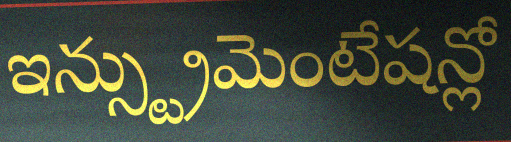
ఇన్స్ట్రుమెంటేషన్లో